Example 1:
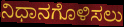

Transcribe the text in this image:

ನಿಧಾನಗೊಳಿಸಲು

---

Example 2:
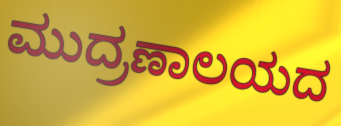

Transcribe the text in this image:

ಮುದ್ರಣಾಲಯದ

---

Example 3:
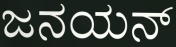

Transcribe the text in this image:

ಜನಯನ್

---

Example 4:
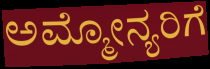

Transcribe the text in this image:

ಅಮ್ಮೋನ್ಯರಿಗೆ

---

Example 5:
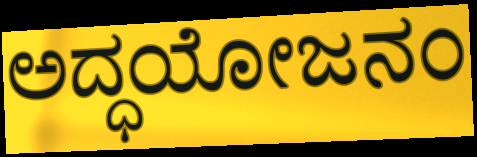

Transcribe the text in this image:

ಅದ್ಧಯೋಜನಂ